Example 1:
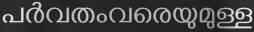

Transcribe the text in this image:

പർവതംവരെയുമുള്ള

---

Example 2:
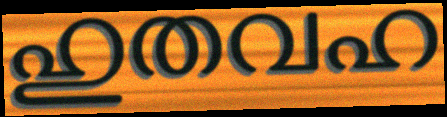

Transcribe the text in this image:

ഹുതവഹ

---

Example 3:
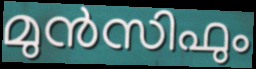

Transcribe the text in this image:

മുൻസിഫും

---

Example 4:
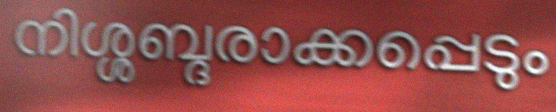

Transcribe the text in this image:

നിശ്ശബ്ദരാക്കപ്പെടും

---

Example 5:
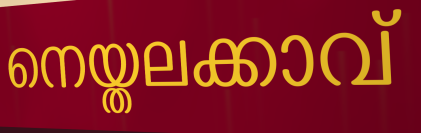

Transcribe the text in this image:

നെയ്തലക്കാവ്